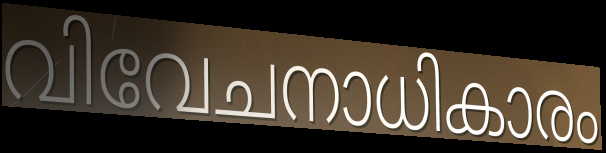
വിവേചനാധികാരം